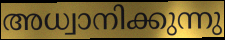
അധ്വാനിക്കുന്നു